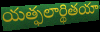
యత్ఫలార్థితయా